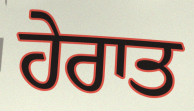
ਹੇਰਾਤ